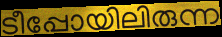
ടീപ്പോയിലിരുന്ന